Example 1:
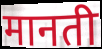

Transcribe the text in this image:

मानती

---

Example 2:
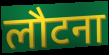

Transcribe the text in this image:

लौटना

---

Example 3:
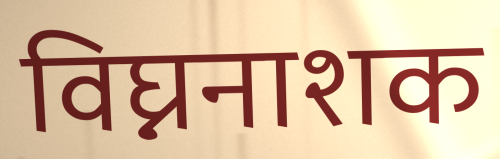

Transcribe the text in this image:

विघ्ननाशक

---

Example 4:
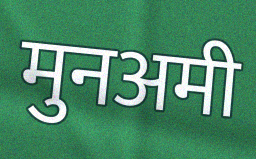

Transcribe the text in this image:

मुनअमी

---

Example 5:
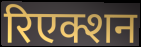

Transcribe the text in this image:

रिएक्शन